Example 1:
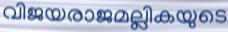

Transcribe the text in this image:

വിജയരാജമല്ലികയുടെ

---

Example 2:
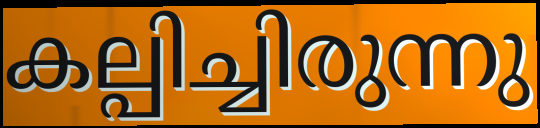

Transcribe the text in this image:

കല്പിച്ചിരുന്നു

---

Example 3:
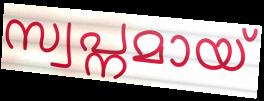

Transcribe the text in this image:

സ്വപ്നമായ്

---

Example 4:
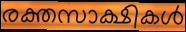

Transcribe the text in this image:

രക്തസാക്ഷികൾ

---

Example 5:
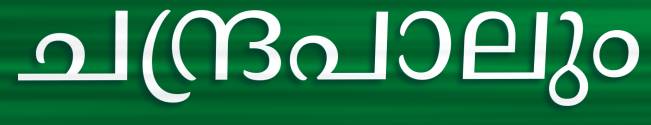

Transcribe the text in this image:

ചന്ദ്രപാലും